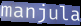
manjula